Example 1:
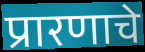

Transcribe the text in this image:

प्रारणाचे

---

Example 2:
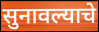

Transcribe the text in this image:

सुनावल्याचे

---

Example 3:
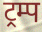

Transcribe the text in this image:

ट्रम्‍प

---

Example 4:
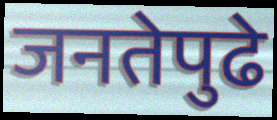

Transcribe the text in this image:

जनतेपुढे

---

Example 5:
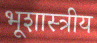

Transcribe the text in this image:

भूशास्त्रीय